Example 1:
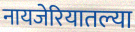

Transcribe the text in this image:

नायजेरियातल्या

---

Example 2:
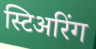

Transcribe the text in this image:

स्टिअरिंग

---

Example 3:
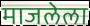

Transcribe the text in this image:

माजलेला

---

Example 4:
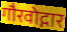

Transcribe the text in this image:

गौरवोद्गार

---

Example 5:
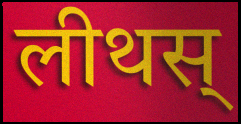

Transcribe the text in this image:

लीथस्